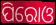
ପିରୋଓ